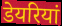
डेयरियां